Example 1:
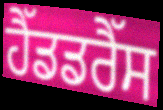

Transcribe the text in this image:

ਹੈੱਡਡਰੈੱਸ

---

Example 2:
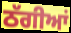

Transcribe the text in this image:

ਠੱਗੀਆਂ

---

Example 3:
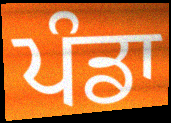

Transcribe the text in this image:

ਪੰਡਾ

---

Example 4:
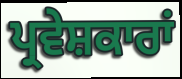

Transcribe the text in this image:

ਪ੍ਰਵੇਸ਼ਕਾਰਾਂ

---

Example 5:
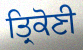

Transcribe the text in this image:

ਤ੍ਰਿਕੋਣੀ